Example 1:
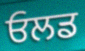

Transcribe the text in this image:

ਓਲਡ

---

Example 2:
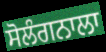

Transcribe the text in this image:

ਸੋਲੰਗਨਾਲਾ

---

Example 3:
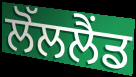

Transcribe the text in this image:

ਲੋੱਲਲੈਂਡ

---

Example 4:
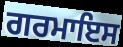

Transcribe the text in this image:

ਗਰਮਾਇਸ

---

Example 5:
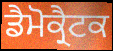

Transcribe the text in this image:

ਡੈਮੋਕ੍ਰੈਟਕ